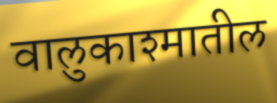
वालुकाश्मातील